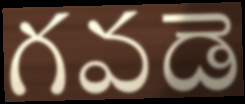
గవడె